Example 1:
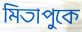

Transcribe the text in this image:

মিতাপুকে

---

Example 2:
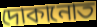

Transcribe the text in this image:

দোকানোত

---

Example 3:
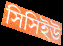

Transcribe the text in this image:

সিসিইউ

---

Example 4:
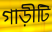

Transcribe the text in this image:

গাড়ীটি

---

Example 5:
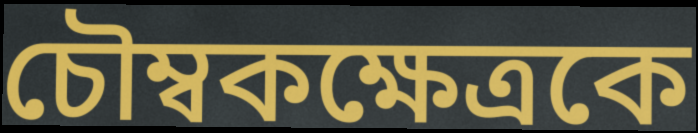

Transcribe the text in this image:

চৌম্বকক্ষেত্রকে